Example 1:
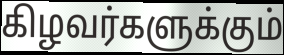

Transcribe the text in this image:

கிழவர்களுக்கும்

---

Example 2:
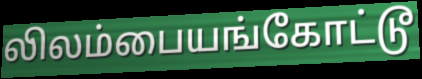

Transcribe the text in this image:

லிலம்பையங்கோட்டூ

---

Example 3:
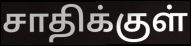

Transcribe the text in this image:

சாதிக்குள்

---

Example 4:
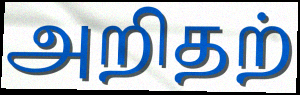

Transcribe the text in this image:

அறிதற்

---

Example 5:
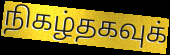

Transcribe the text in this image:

நிகழ்தகவுக்